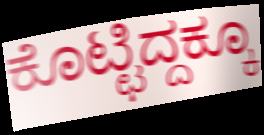
ಕೊಟ್ಟಿದ್ದಕ್ಕೂ